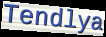
Tendlya